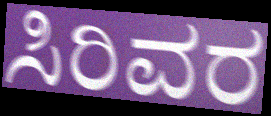
ಸಿರಿವರ